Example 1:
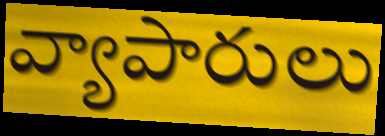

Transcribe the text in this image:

వ్యాపారులు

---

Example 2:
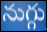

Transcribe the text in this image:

నుగ్గు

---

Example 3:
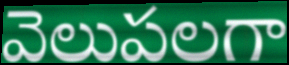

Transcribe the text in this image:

వెలుపలగా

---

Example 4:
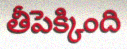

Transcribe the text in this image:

తీపెక్కింది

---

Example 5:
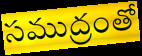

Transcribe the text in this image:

సముద్రంతో